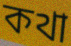
কথা